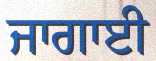
ਜਾਗਾਈ